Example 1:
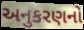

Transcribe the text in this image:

અનુકરણનો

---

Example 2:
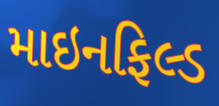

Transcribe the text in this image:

માઇનફિલ્ડ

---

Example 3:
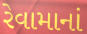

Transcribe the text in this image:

રેવામાનાં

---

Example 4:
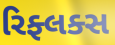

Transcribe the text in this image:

રિફ્લક્સ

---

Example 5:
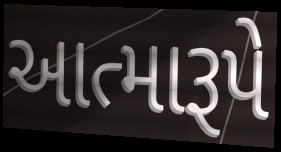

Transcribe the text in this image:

આત્મારૂપે